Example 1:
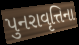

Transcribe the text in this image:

પુનરાવૃત્તિના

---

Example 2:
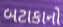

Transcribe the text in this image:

બટાકાનો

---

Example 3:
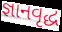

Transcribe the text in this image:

જ્ઞાનવૃદ્ધ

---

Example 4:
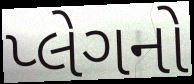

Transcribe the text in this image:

પ્લેગનો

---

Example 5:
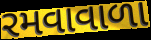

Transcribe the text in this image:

રમવાવાળા